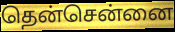
தென்சென்னை